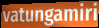
vatungamiri